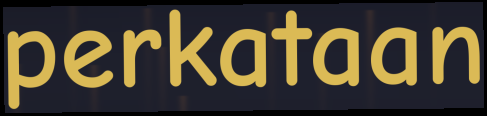
perkataan